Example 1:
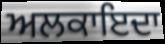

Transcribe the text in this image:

ਅਲਕਾਇਦਾ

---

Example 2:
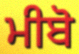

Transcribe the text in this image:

ਮੀਬੋ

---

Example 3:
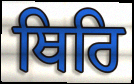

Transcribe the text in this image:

ਥਿਰਿ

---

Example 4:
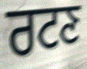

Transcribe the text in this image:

ਰਟਣ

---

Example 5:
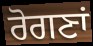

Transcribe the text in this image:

ਰੋਗਣਾਂ